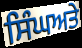
ਸਿੰਘਅਤੇ